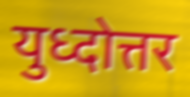
युध्दोत्तर